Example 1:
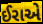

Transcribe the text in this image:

ઈરાએ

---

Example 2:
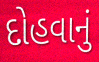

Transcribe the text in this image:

દોહવાનું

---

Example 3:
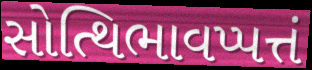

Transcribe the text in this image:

સોત્થિભાવપ્પત્તં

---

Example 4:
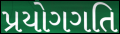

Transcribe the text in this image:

પ્રયોગગતિ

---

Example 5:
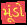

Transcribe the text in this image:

મૂંડો